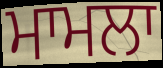
ਮਾਮਲਾ